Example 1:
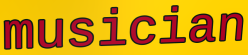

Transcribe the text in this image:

musician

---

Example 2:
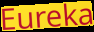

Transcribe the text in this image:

Eureka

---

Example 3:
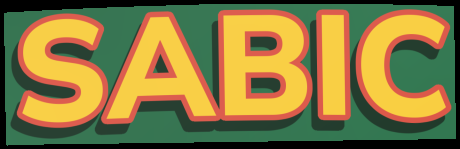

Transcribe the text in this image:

SABIC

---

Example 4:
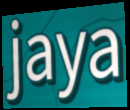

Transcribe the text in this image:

jaya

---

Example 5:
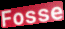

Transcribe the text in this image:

Fosse